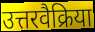
उत्तरवैक्रिया